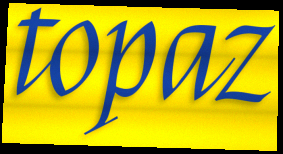
topaz